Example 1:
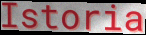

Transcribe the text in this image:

Istoria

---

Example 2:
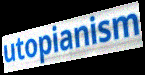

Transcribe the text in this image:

utopianism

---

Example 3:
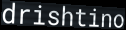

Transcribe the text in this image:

drishtino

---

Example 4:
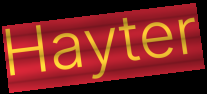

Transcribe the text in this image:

Hayter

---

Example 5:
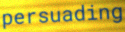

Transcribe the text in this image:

persuading